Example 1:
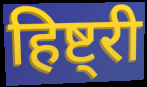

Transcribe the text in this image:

हिष्ट्री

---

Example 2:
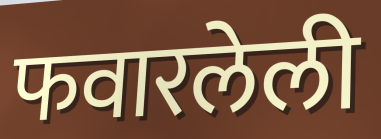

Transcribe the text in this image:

फवारलेली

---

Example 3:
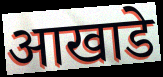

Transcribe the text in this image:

आखाडे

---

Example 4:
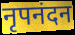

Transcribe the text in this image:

नृपनंदन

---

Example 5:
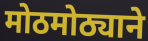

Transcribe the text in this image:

मोठमोठ्याने